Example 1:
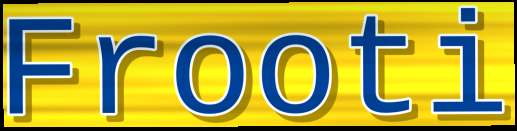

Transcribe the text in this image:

Frooti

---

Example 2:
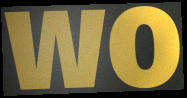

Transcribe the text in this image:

wo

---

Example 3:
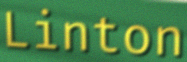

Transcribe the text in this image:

Linton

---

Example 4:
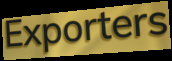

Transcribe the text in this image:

Exporters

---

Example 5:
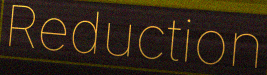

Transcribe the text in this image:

Reduction